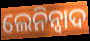
ଲେନିନ୍ବାଦ